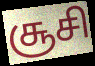
சூசி